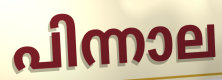
പിന്നാല